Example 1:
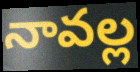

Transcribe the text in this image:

నావల్ల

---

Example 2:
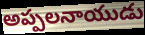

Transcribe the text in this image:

అప్పలనాయుడు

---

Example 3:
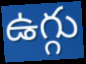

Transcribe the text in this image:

ఉగ్గు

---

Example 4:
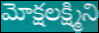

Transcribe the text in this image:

మోక్షలక్ష్మిని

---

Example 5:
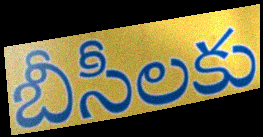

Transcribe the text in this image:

బీసీలకు